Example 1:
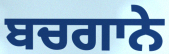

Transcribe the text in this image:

ਬਚਗਾਨੇ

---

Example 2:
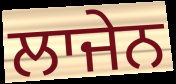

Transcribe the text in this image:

ਲਾਜੇਨ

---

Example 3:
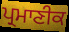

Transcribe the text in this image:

ਪ੍ਰਮਾਣੀਕ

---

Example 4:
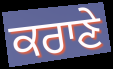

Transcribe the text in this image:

ਕਰਾਣੇ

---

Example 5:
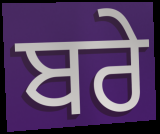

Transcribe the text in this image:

ਬਰੇ